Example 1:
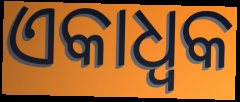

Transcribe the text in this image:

ଏକାଧ୍ଵକ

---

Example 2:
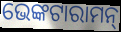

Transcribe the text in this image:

ଭେଙ୍କଟାରାମନ୍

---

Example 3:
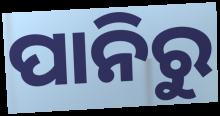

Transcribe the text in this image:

ପାନିରୁ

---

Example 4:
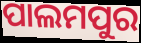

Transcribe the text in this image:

ପାଲମପୁର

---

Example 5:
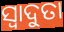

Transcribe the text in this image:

ସ୍ୱାଦୁତା